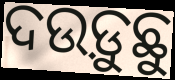
ଦଉଡ଼ୁଛୁ